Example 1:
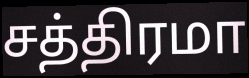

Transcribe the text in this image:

சத்திரமா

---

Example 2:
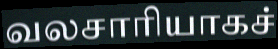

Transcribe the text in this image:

வலசாரியாகச்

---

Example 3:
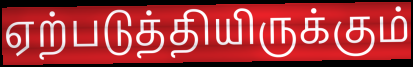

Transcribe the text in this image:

ஏற்படுத்தியிருக்கும்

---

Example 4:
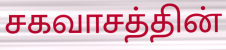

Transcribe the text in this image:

சகவாசத்தின்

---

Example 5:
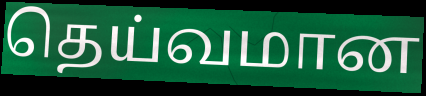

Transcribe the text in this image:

தெய்வமான